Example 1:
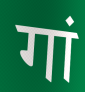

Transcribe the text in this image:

गां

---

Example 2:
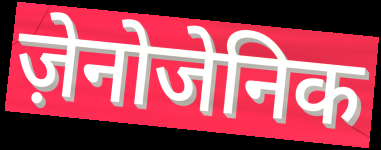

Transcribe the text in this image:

ज़ेनोजेनिक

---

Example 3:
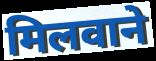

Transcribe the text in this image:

मिलवाने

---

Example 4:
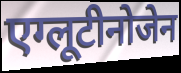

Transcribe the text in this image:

एग्लूटीनोजेन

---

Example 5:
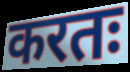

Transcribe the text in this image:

करतः